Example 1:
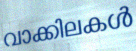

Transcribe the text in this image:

വാക്കിലകൾ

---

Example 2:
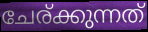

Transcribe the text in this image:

ചേര്ക്കുന്നത്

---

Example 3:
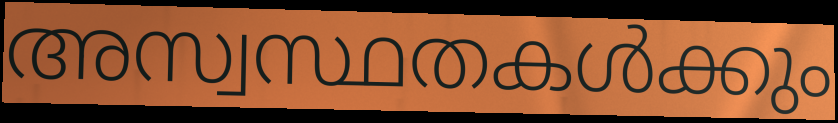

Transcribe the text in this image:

അസ്വസ്ഥതകൾക്കും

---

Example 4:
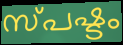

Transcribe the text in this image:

സ്പഷ്ടം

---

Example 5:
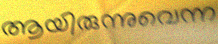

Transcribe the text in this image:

ആയിരുന്നുവെന്ന